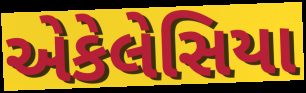
એકેલેસિયા